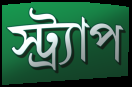
স্ট্র্যাপ